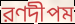
রণদীপম